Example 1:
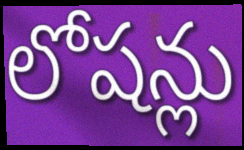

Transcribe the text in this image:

లోషన్లు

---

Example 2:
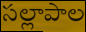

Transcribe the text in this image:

సల్లాపాల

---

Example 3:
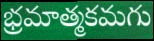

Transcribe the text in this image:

భ్రమాత్మకమగు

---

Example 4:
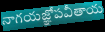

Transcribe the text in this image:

నాగయజ్ఞోపవీతాయ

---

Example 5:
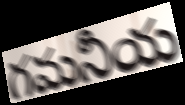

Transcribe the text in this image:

గమనీయ